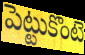
పెట్టుకొంటె